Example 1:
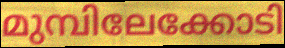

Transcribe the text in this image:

മുമ്പിലേക്കോടി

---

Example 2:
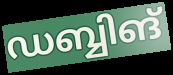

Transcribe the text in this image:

ഡബ്ബിങ്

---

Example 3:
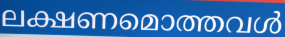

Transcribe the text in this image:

ലക്ഷണമൊത്തവൾ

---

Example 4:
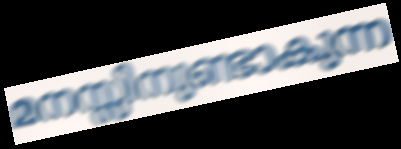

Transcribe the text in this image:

മനസ്സിനുണ്ടാകുന്ന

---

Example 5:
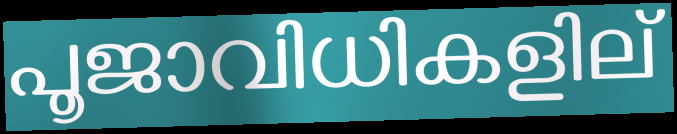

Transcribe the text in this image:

പൂജാവിധികളില്